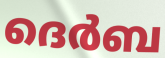
ദെർബ